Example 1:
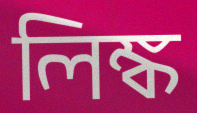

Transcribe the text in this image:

লিঙ্ক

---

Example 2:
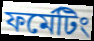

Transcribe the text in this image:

ফর্মেটিং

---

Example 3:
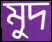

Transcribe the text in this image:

মুদ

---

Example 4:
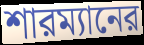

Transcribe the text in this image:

শারম্যানের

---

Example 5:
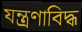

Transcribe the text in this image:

যন্ত্রণাবিদ্ধ